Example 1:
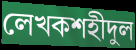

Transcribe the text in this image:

লেখকশহীদুল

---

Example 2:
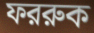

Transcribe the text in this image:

ফররুক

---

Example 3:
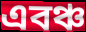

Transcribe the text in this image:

এবঞ্চ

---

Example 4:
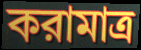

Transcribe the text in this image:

করামাত্র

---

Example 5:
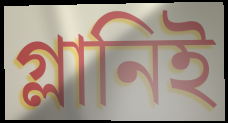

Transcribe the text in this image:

গ্লানিই